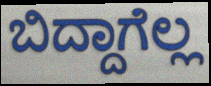
ಬಿದ್ದಾಗೆಲ್ಲ